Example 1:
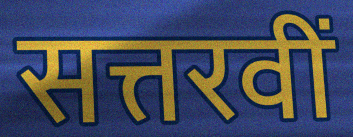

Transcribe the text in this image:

सत्तरवीं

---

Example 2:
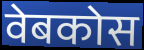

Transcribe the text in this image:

वेबकोस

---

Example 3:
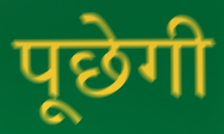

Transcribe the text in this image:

पूछेगी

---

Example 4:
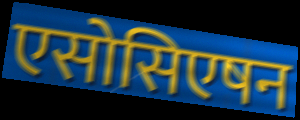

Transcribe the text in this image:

एसोसिएषन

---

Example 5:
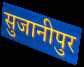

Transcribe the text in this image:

सुजानीपुर